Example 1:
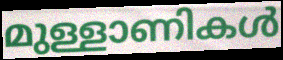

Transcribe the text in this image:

മുള്ളാണികൾ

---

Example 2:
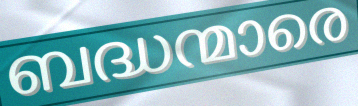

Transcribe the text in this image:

ബദ്ധന്മാരെ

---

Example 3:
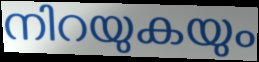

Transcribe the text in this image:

നിറയുകയും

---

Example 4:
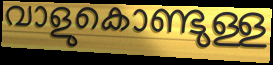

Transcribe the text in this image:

വാളുകൊണ്ടുള്ള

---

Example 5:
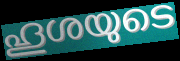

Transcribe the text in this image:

ഹൂശയുടെ